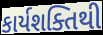
કાર્યશક્તિથી